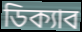
ডিক্যাব